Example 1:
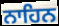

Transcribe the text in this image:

ਨਾਹਿਨ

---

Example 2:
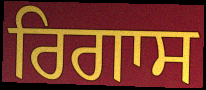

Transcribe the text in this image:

ਰਿਗਾਸ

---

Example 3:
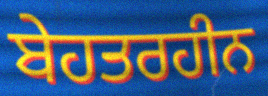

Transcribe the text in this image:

ਬੇਹਤਰਹੀਨ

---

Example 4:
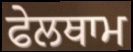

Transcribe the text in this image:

ਫੇਲਥਾਮ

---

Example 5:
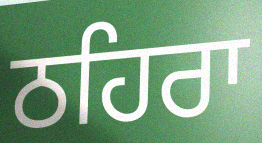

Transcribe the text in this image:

ਠਹਿਰਾ